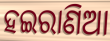
ହଇରାଣିଆ